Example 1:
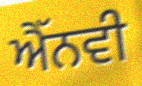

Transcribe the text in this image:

ਐੱਨਵੀ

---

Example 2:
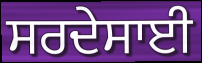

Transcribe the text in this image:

ਸਰਦੇਸਾਈ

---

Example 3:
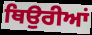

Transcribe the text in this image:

ਥਿਉਰੀਆਂ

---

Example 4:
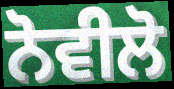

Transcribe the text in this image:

ਨੋਵੀਲੋ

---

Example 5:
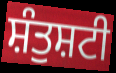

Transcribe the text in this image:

ਸ਼ੰਤੁਸ਼ਟੀ